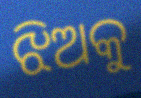
ଝିଅକୁ